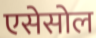
एसेसोल